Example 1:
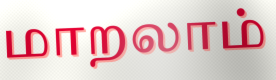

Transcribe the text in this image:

மாறலாம்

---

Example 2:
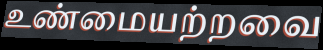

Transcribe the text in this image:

உண்மையற்றவை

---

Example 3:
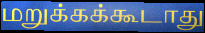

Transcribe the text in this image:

மறுக்கக்கூடாது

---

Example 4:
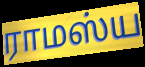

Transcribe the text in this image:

ராமஸ்ய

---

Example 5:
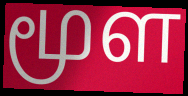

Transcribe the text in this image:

மூள